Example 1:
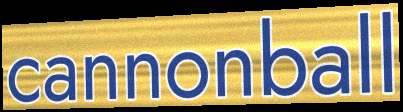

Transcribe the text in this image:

cannonball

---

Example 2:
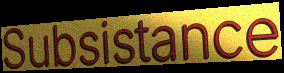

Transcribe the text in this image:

Subsistance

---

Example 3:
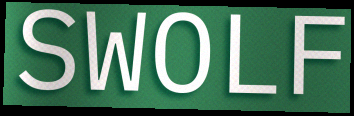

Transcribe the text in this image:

SWOLF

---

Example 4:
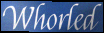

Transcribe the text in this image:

Whorled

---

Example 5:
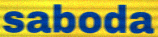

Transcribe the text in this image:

saboda